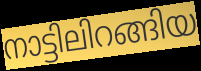
നാട്ടിലിറങ്ങിയ